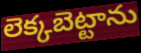
లెక్కబెట్టాను